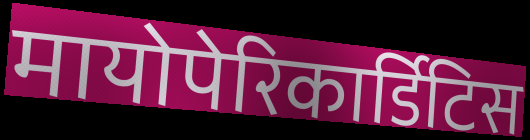
मायोपेरिकार्डिटिस